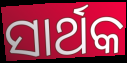
ସାର୍ଥକ